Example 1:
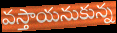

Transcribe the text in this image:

వస్తాయనుకున్న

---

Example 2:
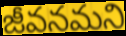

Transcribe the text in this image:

జీవనమని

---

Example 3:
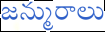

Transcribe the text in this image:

జన్మురాలు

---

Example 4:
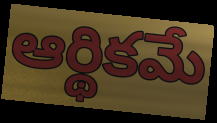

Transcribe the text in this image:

ఆర్థికమే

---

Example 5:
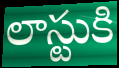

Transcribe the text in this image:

లాస్టుకి